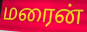
மரைன்